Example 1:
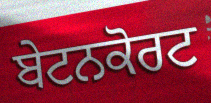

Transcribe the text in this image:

ਬੇਟਨਕੋਰਟ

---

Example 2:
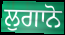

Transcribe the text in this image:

ਲੁਗਾਨੋ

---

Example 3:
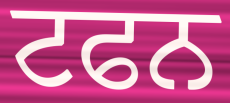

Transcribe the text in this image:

ਟਫਨ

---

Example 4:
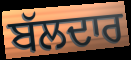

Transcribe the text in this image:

ਬੱਲਦਾਰ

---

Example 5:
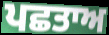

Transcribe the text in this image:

ਪਛਤਾਅ